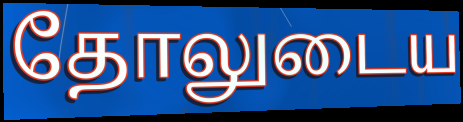
தோலுடைய